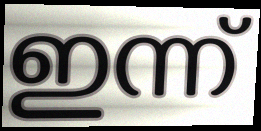
ഇന്ന്